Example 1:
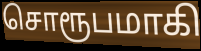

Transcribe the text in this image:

சொரூபமாகி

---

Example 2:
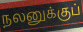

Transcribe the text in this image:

நலனுக்குப்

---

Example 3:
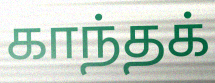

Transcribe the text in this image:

காந்தக்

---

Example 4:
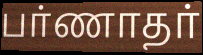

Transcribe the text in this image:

பர்ணாதர்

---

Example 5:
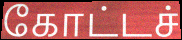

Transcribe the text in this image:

கோட்டச்